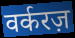
वर्करज़